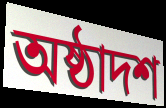
অষ্ঠাদশ